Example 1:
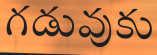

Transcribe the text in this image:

గడువుకు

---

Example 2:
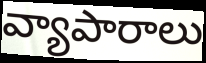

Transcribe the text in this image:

వ్యాపారాలు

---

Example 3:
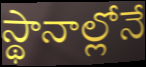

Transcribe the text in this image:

స్థానాల్లోనే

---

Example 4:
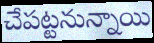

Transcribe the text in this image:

చేపట్టనున్నాయి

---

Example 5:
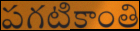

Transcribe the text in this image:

పగటికాంతి